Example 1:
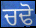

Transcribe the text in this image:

ਚਢੋ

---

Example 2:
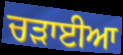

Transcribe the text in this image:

ਚੜਾਈਆ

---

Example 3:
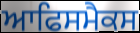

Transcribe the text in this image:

ਆਫਿਸਮੈਕਸ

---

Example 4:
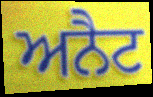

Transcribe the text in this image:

ਅਨੈਟ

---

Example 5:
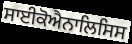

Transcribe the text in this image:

ਸਾਈਕੋਐਨਾਲਿਸਿਸ